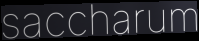
saccharum